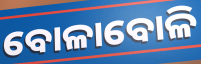
ବୋଳାବୋଳି